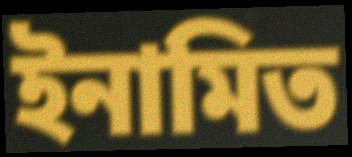
ইনামিত